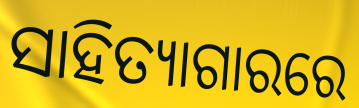
ସାହିତ୍ୟାଗାରରେ